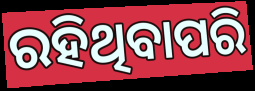
ରହିଥିବାପରି